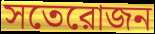
সতেরোজন